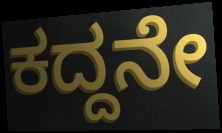
ಕದ್ದನೇ